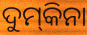
ଦୁମ୍‌କିନା